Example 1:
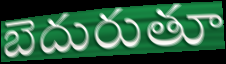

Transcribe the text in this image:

బెదురుతూ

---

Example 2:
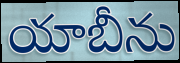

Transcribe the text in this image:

యాబీను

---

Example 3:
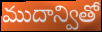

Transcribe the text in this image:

ముదాన్వితో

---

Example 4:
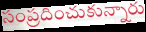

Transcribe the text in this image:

సంప్రదించుకున్నారు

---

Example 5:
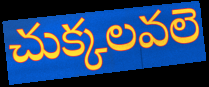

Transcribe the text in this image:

చుక్కలవలె